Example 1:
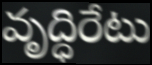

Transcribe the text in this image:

వృద్ధిరేటు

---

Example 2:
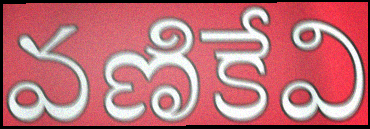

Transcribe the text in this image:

వణికేవి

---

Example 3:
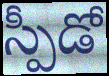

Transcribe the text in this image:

స్పీడో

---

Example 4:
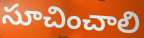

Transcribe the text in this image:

సూచించాలి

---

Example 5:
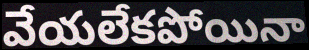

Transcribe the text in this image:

వేయలేకపోయినా